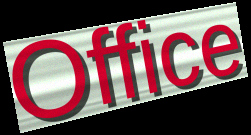
Office